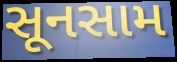
સૂનસામ